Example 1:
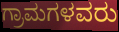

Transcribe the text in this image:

ಗ್ರಾಮಗಳವರು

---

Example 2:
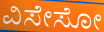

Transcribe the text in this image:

ವಿಸೇಸೋ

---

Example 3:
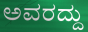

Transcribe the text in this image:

ಅವರದ್ದು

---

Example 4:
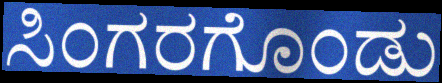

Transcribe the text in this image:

ಸಿಂಗರಗೊಂಡು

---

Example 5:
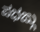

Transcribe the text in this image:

ಪಭಙ್ಗು